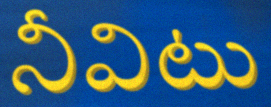
నీవిటు